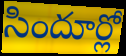
సిందూర్లో